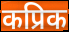
कप्रिक